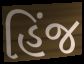
હિંજ